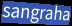
sangraha